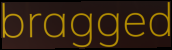
bragged